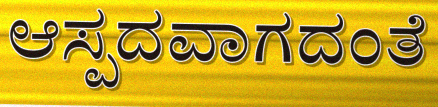
ಆಸ್ಪದವಾಗದಂತೆ